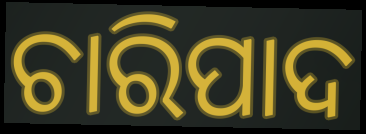
ଚାରିପାଦ